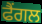
ਫੈਂਗਲ